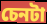
চেনটা